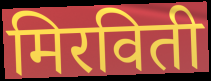
मिरविती